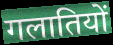
गलातियों